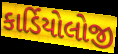
કાર્ડિયોલોજી